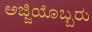
ಅಜ್ಜಿಯೊಬ್ಬರು